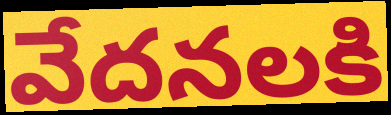
వేదనలకి